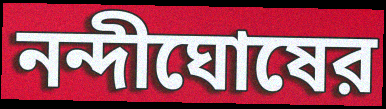
নন্দীঘোষের